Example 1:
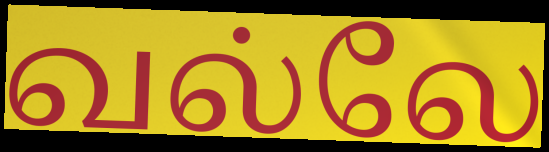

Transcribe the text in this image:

வல்லே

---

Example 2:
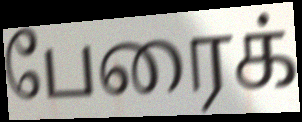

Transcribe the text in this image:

பேரைக்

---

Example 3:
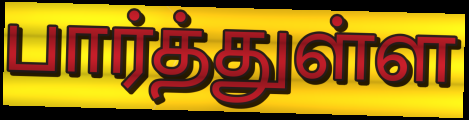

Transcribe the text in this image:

பார்த்துள்ள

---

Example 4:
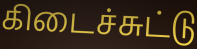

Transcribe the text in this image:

கிடைச்சுட்டு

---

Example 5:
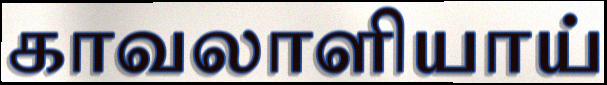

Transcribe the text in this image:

காவலாளியாய்